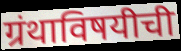
ग्रंथाविषयीची